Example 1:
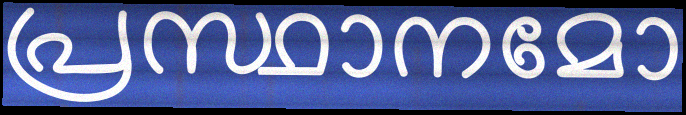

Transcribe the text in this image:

പ്രസ്ഥാനമോ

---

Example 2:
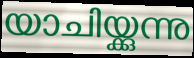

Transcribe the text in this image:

യാചിയ്ക്കുന്നു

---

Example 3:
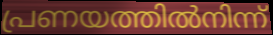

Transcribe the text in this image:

പ്രണയത്തിൽനിന്ന്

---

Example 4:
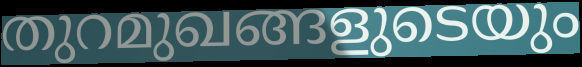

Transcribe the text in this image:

തുറമുഖങ്ങളുടെയും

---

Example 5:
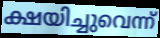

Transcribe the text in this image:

ക്ഷയിച്ചുവെന്ന്